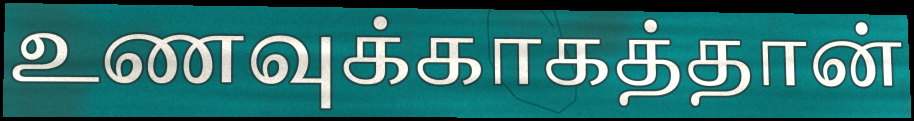
உணவுக்காகத்தான்